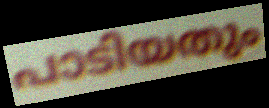
പാടിയതും